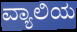
ವ್ಯಾಲಿಯ